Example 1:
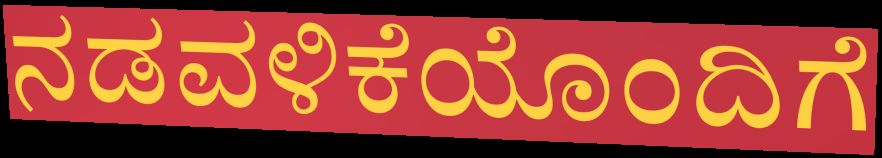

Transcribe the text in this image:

ನಡವಳಿಕೆಯೊಂದಿಗೆ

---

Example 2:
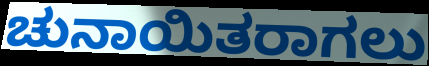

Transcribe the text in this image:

ಚುನಾಯಿತರಾಗಲು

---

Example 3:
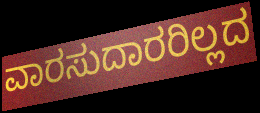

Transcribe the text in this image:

ವಾರಸುದಾರರಿಲ್ಲದ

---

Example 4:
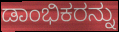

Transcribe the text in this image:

ಡಾಂಭಿಕರನ್ನು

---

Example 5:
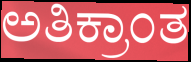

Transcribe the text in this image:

ಅತಿಕ್ರಾಂತ